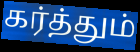
கர்த்தும்